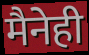
मैनेही